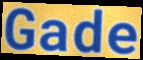
Gade